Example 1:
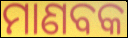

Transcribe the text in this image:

ମାଣବକ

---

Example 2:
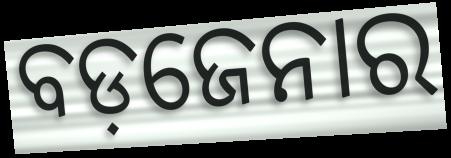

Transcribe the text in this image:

ବଡ଼ଜେନାର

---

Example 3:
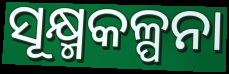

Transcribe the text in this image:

ସୂକ୍ଷ୍ମକଳ୍ପନା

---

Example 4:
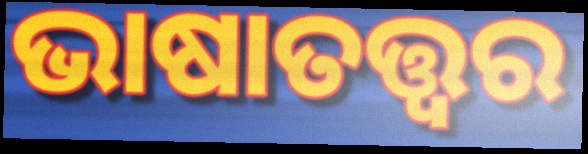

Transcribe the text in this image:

ଭାଷାତତ୍ତ୍ଵର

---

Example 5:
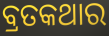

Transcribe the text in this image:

ବ୍ରତକଥାର